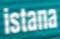
istana